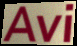
Avi